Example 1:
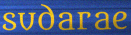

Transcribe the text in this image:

sudarae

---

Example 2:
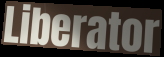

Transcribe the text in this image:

Liberator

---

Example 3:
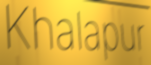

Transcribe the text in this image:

Khalapur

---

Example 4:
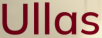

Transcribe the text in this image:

Ullas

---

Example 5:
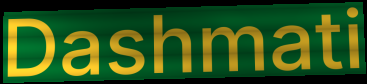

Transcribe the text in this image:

Dashmati